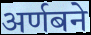
अर्णबने